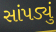
સાંપડ્યું